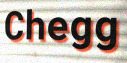
Chegg